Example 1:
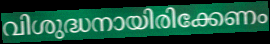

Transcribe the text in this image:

വിശുദ്ധനായിരിക്കേണം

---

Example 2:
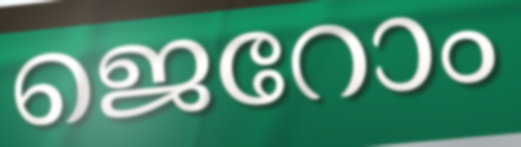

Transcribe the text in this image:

ജെറോം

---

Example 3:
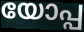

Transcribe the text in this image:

യോപ്പ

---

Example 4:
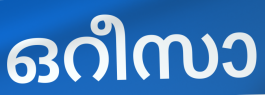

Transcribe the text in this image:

ഒറീസാ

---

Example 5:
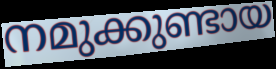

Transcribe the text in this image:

നമുക്കുണ്ടായ